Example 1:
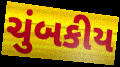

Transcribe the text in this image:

ચુંબકીય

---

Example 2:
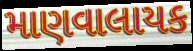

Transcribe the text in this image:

માણવાલાયક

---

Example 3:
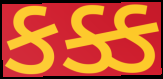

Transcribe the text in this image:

કક્ક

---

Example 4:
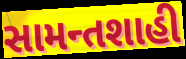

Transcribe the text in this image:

સામન્તશાહી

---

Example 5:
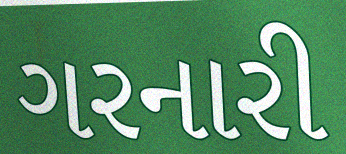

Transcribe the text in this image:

ગરનારી